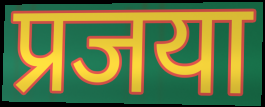
प्रजया